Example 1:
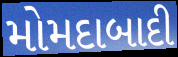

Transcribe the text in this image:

મોમદાબાદી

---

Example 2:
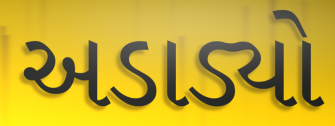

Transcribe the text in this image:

અડાડ્યો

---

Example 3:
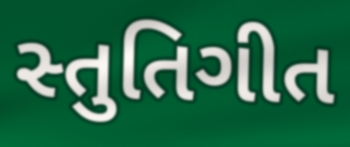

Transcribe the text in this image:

સ્તુતિગીત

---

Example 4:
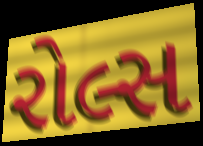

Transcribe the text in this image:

રોલ્સ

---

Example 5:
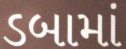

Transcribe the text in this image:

ડબામાં